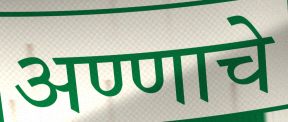
अण्णाचे